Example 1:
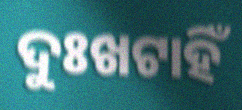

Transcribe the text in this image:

ଦୁଃଖଟାହିଁ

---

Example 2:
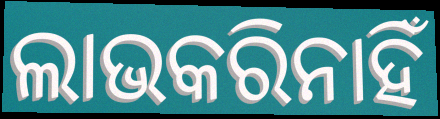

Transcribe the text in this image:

ଲାଭକରିନାହିଁ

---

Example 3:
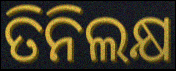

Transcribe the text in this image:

ତିନିଲକ୍ଷ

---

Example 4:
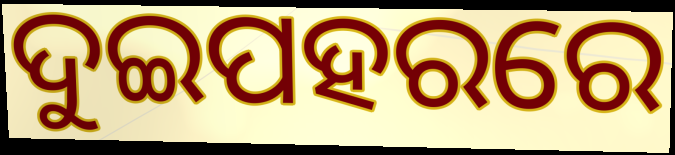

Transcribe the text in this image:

ଦୁଇପହରରେ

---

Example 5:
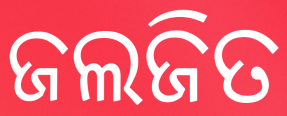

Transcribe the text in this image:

ଜଲଜିତ